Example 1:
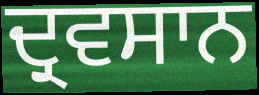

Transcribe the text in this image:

ਦ੍ਰਵਸਾਨ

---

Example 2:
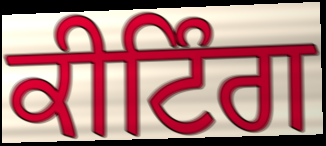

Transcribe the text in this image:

ਕੀਟਿੰਗ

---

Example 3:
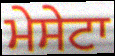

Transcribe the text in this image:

ਮੇਸੇਟਾ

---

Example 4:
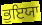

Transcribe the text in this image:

ਭੁਇਯਾ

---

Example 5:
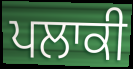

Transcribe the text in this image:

ਪਲਾਕੀ